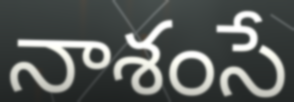
నాశంసే